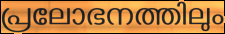
പ്രലോഭനത്തിലും